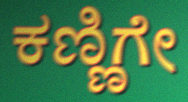
ಕಣ್ಣಿಗೇ